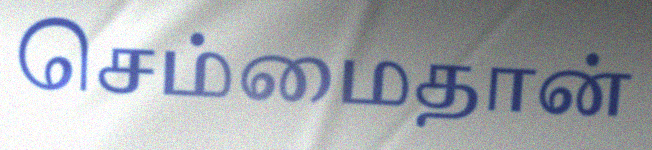
செம்மைதான்